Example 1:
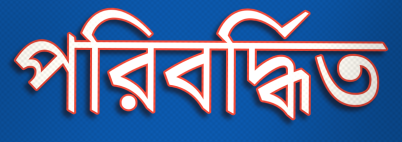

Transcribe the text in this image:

পরিবর্দ্ধিত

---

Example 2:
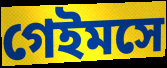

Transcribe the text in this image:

গেইমসে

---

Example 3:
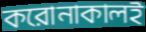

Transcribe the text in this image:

করোনাকালই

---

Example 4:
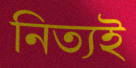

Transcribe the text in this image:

নিত্যই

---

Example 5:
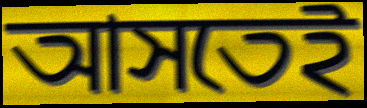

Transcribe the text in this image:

আসতেই